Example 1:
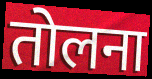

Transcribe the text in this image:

तोलना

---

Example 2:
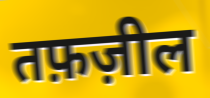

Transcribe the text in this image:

तफ़ज़ील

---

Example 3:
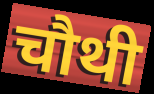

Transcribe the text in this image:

चौथी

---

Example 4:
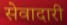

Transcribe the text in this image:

सेवादारी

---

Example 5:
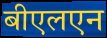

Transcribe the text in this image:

बीएलएन